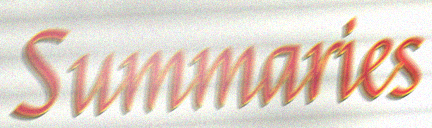
Summaries